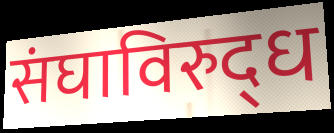
संघाविरुद्ध